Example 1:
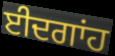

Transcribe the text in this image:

ਈਦਗਾਂਹ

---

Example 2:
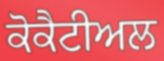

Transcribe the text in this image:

ਕੋਕੈਟੀਅਲ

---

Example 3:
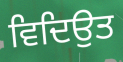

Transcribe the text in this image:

ਵਿਦਿਉਤ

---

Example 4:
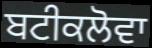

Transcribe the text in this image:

ਬਟੀਕਲੋਵਾ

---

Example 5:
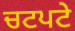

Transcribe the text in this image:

ਚਟਪਟੇ